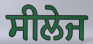
ਸੀਲੇਜ